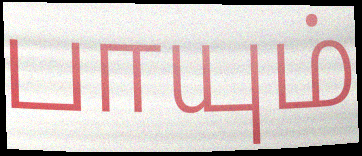
பாயும்